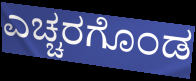
ಎಚ್ಚರಗೊಂಡ